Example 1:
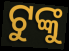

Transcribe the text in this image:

ଟୁଙ୍କୁ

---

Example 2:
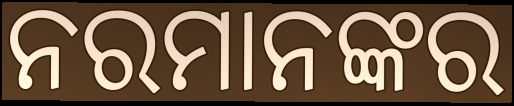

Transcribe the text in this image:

ନରମାନଙ୍କର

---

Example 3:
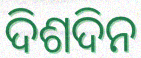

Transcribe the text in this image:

ଦିଶଦିନ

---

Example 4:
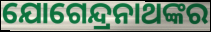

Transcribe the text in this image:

ଯୋଗେନ୍ଦ୍ରନାଥଙ୍କର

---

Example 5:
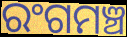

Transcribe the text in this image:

ରଂଗମଞ୍ଚ